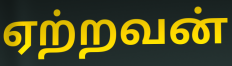
ஏற்றவன்